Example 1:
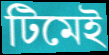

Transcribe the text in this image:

টিমেই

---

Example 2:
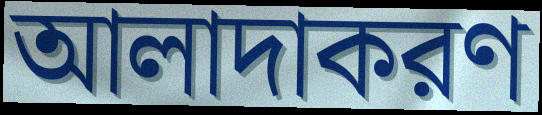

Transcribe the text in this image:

আলাদাকরণ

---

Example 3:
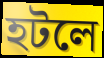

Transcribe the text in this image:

হটলে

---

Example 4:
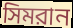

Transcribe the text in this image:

সিমরান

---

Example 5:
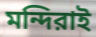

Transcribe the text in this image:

মন্দিরাই